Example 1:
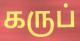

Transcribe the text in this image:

கருப்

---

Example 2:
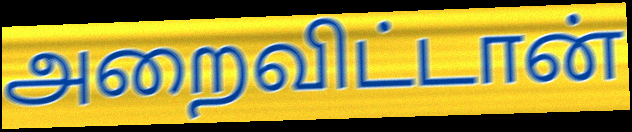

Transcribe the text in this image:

அறைவிட்டான்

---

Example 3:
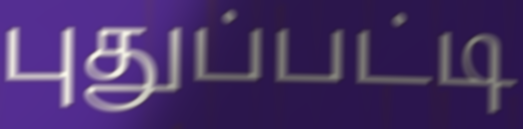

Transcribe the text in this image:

புதுப்பட்டி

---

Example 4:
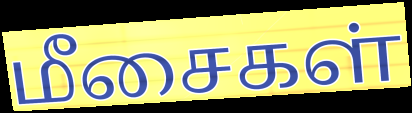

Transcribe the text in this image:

மீசைகள்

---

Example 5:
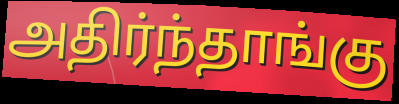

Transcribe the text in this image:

அதிர்ந்தாங்கு